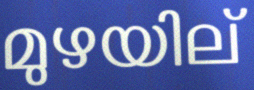
മുഴയില്